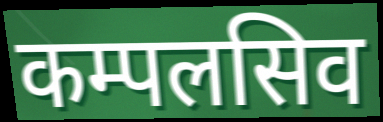
कम्पलसिव